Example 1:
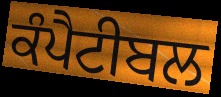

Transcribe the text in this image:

ਕੰਪੈਟੀਬਲ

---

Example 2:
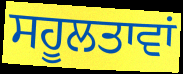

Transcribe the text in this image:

ਸਹੂਲਤਾਵਾਂ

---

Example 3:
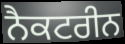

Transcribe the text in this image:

ਨੈਕਟਰੀਨ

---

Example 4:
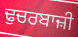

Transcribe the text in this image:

ਢੁਚਰਬਾਜ਼ੀ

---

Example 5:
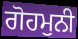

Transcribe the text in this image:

ਗੋਹਮੁਨੀ